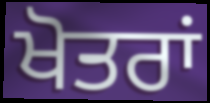
ਖੋਤਰਾਂ